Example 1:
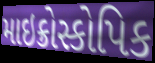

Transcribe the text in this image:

માઇક્રોસ્કોપિક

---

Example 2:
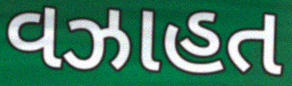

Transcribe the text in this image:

વઝાહત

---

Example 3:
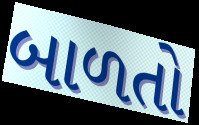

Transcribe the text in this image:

બાળતો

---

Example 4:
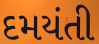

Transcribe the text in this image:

દમયંતી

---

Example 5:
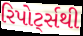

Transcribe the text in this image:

રિપોર્ટ્સથી